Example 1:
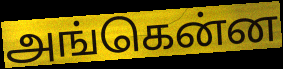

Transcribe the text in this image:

அங்கென்ன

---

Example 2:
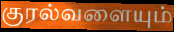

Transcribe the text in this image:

குரல்வளையும்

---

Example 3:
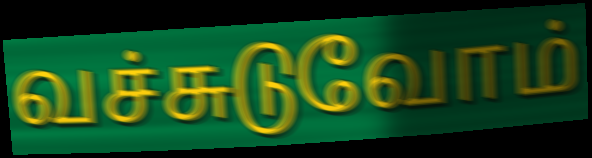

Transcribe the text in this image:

வச்சுடுவோம்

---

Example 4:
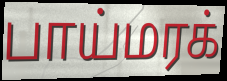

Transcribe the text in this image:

பாய்மரக்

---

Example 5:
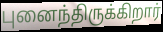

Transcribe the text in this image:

புனைந்திருக்கிறார்